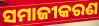
ସମାଜୀକରଣ